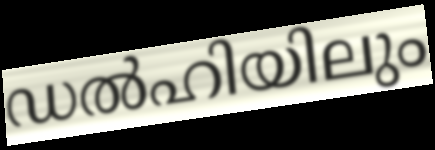
ഡൽഹിയിലും